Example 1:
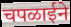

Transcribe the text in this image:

चपळाईने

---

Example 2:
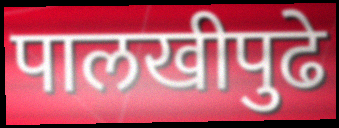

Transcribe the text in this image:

पालखीपुढे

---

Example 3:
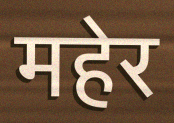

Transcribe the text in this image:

महेर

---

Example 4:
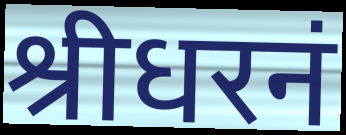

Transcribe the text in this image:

श्रीधरनं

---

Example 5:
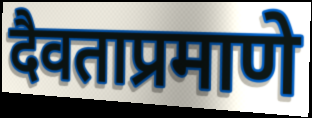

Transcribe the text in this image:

दैवताप्रमाणे